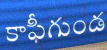
కాఫీగుండ